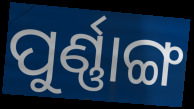
ପୁର୍ଣ୍ଣାଙ୍ଗ